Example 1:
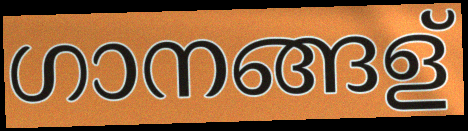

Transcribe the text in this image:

ഗാനങ്ങള്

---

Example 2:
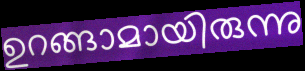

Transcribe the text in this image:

ഉറങ്ങാമായിരുന്നു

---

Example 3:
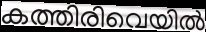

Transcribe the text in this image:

കത്തിരിവെയിൽ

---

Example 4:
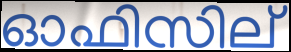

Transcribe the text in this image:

ഓഫിസില്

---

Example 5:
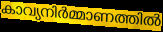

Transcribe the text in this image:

കാവ്യനിർമ്മാണത്തിൽ